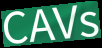
CAVs